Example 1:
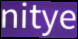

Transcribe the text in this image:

nitye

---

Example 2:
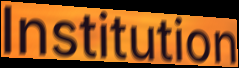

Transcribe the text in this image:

Institution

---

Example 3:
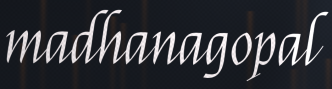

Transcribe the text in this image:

madhanagopal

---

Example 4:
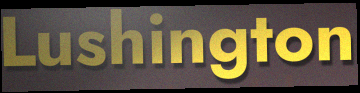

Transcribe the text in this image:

Lushington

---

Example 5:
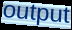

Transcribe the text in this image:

output